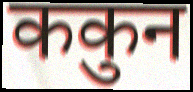
ककुन